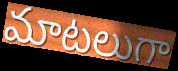
మాటలుగా